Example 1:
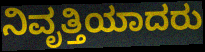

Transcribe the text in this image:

ನಿವೃತ್ತಿಯಾದರು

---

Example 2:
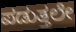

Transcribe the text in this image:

ಪಡುತ್ತಲೇ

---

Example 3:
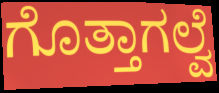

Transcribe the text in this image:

ಗೊತ್ತಾಗಲ್ವೆ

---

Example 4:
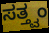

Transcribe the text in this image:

ಸತ್ತ್ವಂ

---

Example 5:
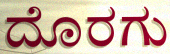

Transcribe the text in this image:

ದೊರಗು